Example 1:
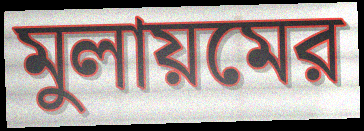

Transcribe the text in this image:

মুলায়মের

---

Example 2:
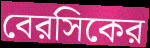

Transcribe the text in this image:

বেরসিকের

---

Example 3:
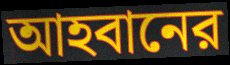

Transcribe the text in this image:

আহবানের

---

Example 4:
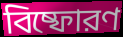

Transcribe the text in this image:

বিষ্ফোরণ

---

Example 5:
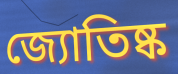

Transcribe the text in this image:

জ্যোতিষ্ক